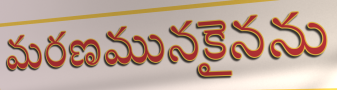
మరణమునకైనను